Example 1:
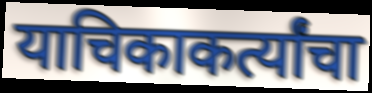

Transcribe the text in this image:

याचिकाकर्त्यांचा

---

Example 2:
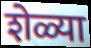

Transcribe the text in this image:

शेळ्या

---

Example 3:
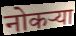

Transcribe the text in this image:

नोकऱ्या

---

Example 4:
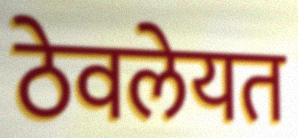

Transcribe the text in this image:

ठेवलेयत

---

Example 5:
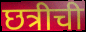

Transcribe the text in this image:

छत्रीची